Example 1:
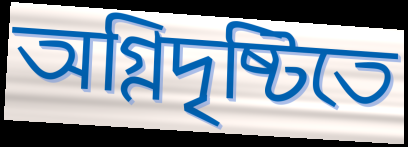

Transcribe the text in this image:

অগ্নিদৃষ্টিতে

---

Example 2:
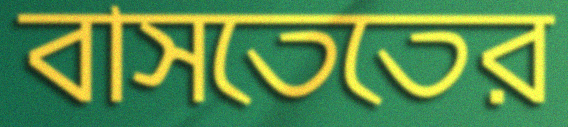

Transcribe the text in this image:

বাসতেতের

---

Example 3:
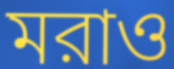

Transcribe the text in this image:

মরাও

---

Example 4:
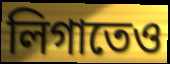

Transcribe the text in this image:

লিগাতেও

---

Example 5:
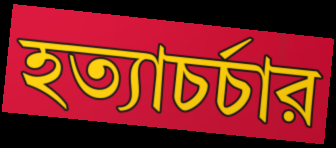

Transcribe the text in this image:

হত্যাচর্চার